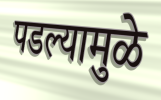
पडल्यामुळे